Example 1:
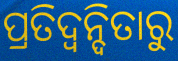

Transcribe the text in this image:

ପ୍ରତିଦ୍ୱନ୍ଦିତାରୁ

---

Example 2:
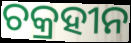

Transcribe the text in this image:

ଚକ୍ରହୀନ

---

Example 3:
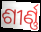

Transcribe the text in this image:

ଶୀର୍ଣ୍ଣ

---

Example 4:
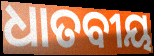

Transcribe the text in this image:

ଧାତବୀୟ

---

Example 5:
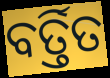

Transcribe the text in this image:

ବର୍ତ୍ତିତ